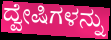
ದ್ವೇಷಿಗಳನ್ನು